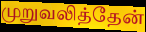
முறுவலித்தேன்